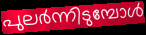
പുലർന്നിടുമ്പോൾ